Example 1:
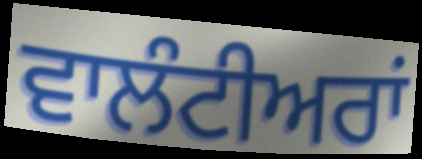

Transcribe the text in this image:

ਵਾਲੰਟੀਅਰਾਂ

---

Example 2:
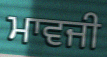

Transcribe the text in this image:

ਮਾਵਜੀ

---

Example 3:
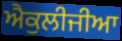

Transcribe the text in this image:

ਐਕੁਲੀਜੀਆ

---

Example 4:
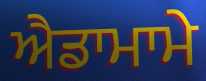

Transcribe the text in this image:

ਐਡਾਮਾਮੇ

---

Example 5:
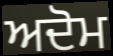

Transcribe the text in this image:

ਅਦੋਮ